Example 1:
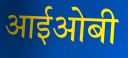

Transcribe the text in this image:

आईओबी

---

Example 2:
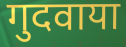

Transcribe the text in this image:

गुदवाया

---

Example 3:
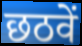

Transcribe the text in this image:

छठवें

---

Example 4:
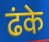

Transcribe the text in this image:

ढंके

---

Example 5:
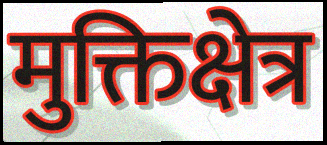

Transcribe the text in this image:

मुक्तिक्षेत्र